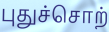
புதுச்சொற்